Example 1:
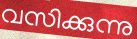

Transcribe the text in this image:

വസിക്കുന്നു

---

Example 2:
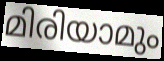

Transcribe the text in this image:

മിരിയാമും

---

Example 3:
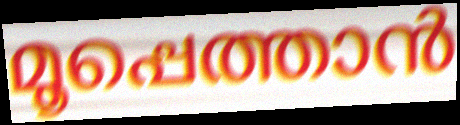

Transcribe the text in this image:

മൂപ്പെത്താൻ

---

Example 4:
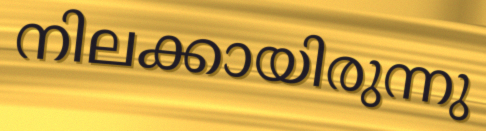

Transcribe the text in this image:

നിലക്കായിരുന്നു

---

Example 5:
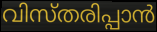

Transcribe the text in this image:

വിസ്തരിപ്പാൻ